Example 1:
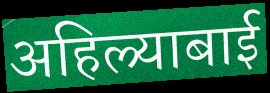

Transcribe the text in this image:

अहिल्याबाई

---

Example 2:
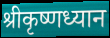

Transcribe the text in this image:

श्रीकृष्णध्यान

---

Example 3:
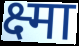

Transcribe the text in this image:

क्ष्मा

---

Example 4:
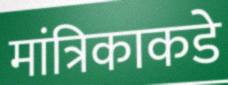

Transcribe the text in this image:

मांत्रिकाकडे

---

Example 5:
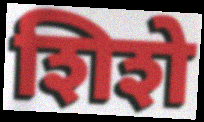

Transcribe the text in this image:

शिशे